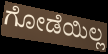
ಗೋಡೆಯಿಲ್ಲ